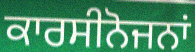
ਕਾਰਸੀਨੋਜਨਾਂ